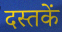
दस्तकें